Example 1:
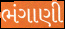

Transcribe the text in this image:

ભંગાણી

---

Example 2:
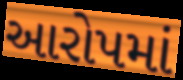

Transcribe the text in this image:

આરોપમાં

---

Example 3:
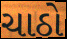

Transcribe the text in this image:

ચાઠો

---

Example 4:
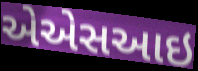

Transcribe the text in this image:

એએસઆઇ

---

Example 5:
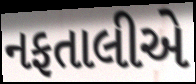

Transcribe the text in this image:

નફતાલીએ